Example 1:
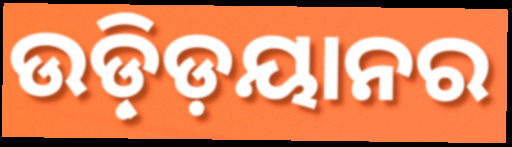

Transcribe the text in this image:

ଉଡ଼୍ଡ଼ିୟାନର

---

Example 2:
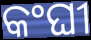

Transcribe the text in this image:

କଂଘୀ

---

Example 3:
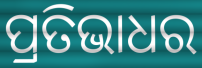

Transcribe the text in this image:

ପ୍ରତିଭାଧର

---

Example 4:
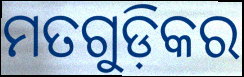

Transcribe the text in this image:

ମତଗୁଡ଼ିକର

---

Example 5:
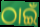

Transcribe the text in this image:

ଠାଇଁ